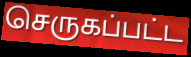
செருகப்பட்ட